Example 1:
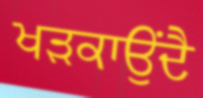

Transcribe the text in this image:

ਖੜਕਾਉਂਦੈ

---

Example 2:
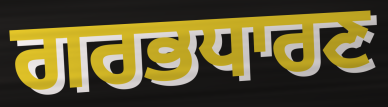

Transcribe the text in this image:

ਗਰਭਧਾਰਣ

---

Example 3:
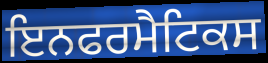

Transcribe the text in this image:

ਇਨਫਰਮੈਟਿਕਸ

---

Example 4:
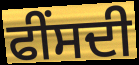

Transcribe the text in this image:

ਫੀਂਸਦੀ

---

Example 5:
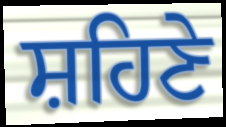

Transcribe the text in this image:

ਸ਼ਹਿਣੇ